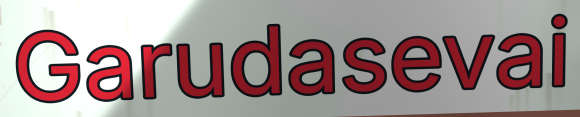
Garudasevai